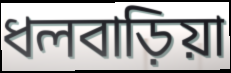
ধলবাড়িয়া